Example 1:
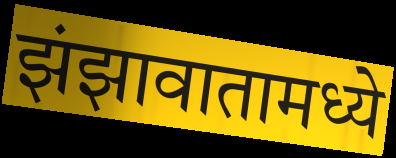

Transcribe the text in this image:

झंझावातामध्ये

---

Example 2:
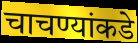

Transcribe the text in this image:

चाचण्यांकडे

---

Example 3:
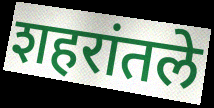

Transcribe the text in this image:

शहरांतले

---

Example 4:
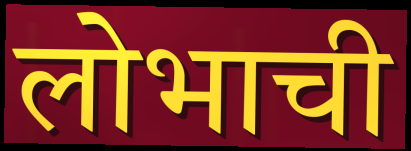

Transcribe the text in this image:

लोभाची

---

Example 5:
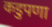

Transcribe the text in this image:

कडुपणा